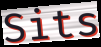
Sits